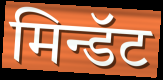
मिन्डॅट